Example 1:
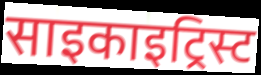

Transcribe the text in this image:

साइकाइट्रिस्ट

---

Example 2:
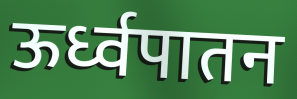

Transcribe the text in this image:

ऊर्ध्वपातन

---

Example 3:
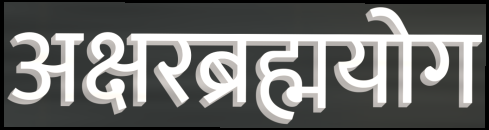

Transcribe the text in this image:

अक्षरब्रह्मयोग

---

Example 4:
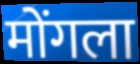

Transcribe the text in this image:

मोंगला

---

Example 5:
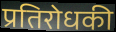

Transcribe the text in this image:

प्रतिरोधकी